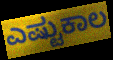
ಎಷ್ಟುಕಾಲ